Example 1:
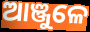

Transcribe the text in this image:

ଆଞ୍ଜୁଳେ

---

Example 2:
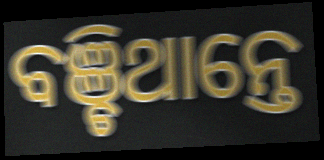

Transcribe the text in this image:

ବଞ୍ଚିଥାନ୍ତେ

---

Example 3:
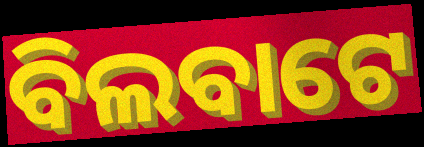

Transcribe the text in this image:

ବିଲବାଟେ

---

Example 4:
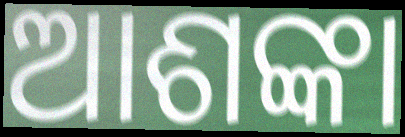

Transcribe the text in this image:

ଆଶଙ୍କା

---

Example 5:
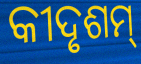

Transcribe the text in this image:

କୀଦୃଶମ୍